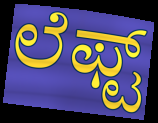
ಲೆಫ್ಟ್